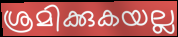
ശ്രമിക്കുകയല്ല